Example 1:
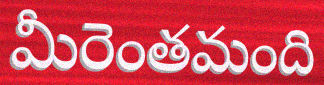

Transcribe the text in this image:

మీరెంతమంది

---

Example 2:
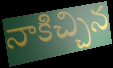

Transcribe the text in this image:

నాకిచ్చిన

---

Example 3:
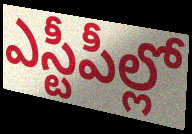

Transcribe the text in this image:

ఎస్టీపీల్లో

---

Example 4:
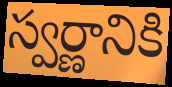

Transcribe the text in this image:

స్వర్ణానికి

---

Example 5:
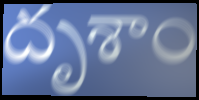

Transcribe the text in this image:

దృశాం